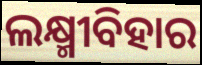
ଲକ୍ଷ୍ମୀବିହାର